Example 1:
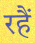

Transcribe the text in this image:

रहैं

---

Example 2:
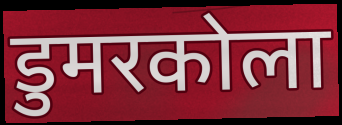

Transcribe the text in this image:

डुमरकोला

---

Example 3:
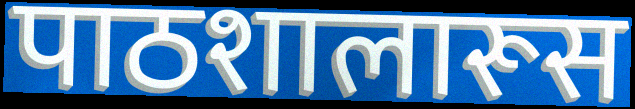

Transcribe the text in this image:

पाठशालारूस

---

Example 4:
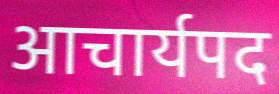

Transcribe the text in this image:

आचार्यपद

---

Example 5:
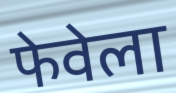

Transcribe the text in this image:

फेवेला